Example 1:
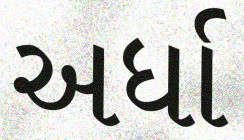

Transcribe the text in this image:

અર્ધા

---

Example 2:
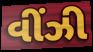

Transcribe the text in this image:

વીંઝી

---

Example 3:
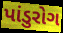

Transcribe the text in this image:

પાંડુરોગ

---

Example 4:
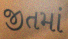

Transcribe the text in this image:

જીતમાં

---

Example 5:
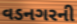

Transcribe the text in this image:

વડનગરની